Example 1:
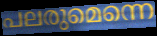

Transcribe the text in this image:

പലരുമെന്നെ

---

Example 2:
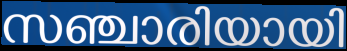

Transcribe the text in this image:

സഞ്ചാരിയായി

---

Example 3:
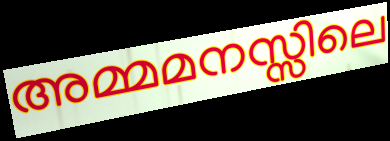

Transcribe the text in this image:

അമ്മമനസ്സിലെ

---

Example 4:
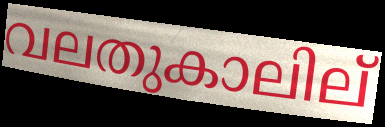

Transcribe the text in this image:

വലതുകാലില്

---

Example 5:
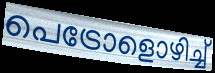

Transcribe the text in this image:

പെട്രോളൊഴിച്ച്